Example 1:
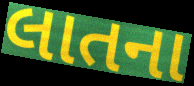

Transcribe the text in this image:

લાતના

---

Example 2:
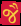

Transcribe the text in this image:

જૈ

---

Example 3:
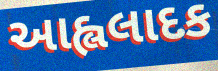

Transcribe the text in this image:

આહ્લલાદક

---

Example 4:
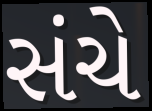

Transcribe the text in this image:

સંચે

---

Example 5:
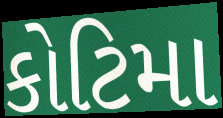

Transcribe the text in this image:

કોટિમા